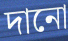
দানো